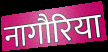
नागौरिया